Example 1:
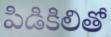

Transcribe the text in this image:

పిడికిలితో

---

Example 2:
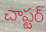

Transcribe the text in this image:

చాప్టర్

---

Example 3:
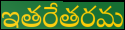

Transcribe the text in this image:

ఇతరేతరమ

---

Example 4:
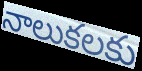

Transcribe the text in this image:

నాలుకలకు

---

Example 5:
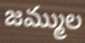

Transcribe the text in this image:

జమ్ముల